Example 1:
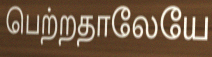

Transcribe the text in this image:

பெற்றதாலேயே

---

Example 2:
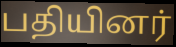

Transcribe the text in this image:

பதியினர்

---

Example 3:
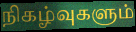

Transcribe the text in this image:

நிகழ்வுகளும்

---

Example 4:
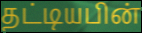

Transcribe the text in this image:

தட்டியபின்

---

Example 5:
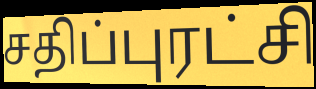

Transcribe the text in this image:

சதிப்புரட்சி